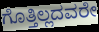
ಗೊತ್ತಿಲ್ಲದವರೇ